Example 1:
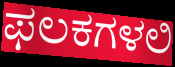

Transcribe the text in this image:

ಫಲಕಗಳಲಿ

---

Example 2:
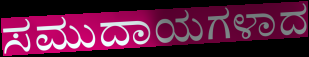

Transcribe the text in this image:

ಸಮುದಾಯಗಳಾದ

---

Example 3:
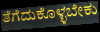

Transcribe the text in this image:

ತೆಗೆದುಕೊಳ್ಳಬೇಕು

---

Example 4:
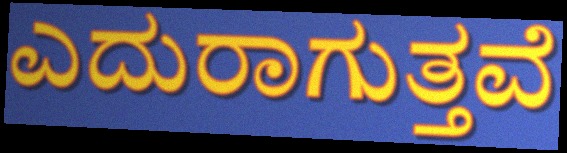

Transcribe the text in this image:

ಎದುರಾಗುತ್ತವೆ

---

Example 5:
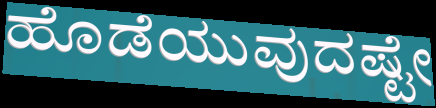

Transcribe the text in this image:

ಹೊಡೆಯುವುದಷ್ಟೇ